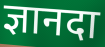
ज्ञानदा